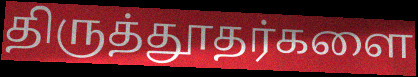
திருத்தூதர்களை